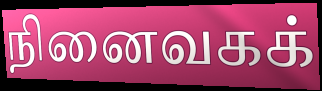
நினைவகக்